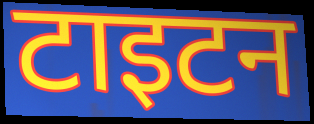
टाइटन